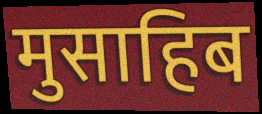
मुसाहिब